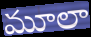
మూలా